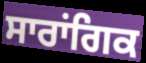
ਸਾਰਾਂਗਿਕ